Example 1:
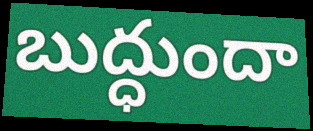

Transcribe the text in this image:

బుద్ధుందా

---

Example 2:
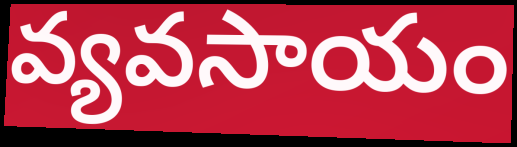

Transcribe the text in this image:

వ్యవసాయం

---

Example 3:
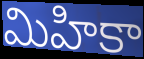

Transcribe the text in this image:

మిహికా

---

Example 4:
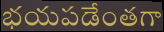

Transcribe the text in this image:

భయపడేంతగా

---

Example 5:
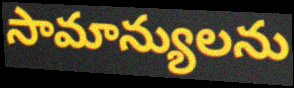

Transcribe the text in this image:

సామాన్యులను